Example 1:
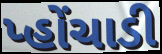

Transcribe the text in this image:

પ્હોંચાડી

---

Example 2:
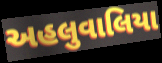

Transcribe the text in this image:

અહલુવાલિયા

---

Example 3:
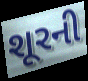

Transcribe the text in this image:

શૂરની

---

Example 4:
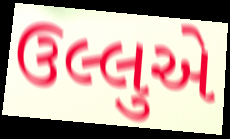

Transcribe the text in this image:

ઉલ્લુએ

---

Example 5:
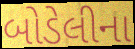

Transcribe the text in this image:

બોડેલીના